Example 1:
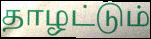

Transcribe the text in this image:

தாழட்டும்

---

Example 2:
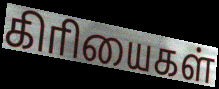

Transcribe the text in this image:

கிரியைகள்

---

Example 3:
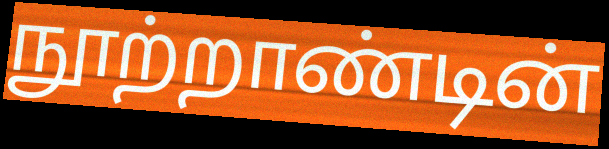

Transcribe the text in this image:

நூற்றாண்டின்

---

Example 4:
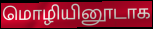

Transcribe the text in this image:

மொழியினூடாக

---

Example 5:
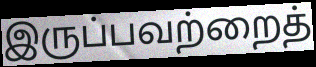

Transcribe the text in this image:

இருப்பவற்றைத்